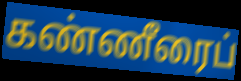
கண்ணீரைப்